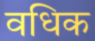
वधिक